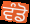
ਵੰਡੋ